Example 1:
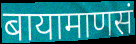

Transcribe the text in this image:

बायामाणसं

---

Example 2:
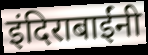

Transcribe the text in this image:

इंदिराबाईंनी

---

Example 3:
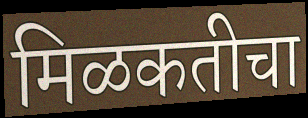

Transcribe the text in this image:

मिळकतीचा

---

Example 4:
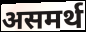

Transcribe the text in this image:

असमर्थ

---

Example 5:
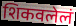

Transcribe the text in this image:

शिकवलेलं